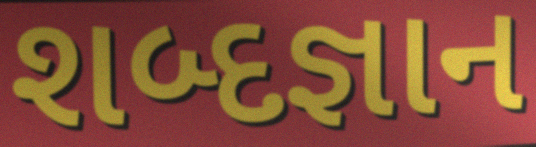
શબ્દજ્ઞાન